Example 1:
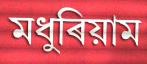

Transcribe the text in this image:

মধুৰিয়াম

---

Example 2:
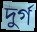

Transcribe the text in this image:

দুৰ্গ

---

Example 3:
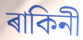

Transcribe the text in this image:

ৰাকিনী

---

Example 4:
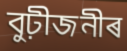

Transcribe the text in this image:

বুঢ়ীজনীৰ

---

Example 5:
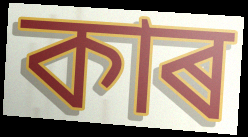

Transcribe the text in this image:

কাৰ